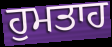
ਹੁਮਤਾਹ